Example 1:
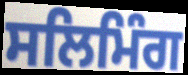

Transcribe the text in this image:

ਸਲਿਮਿੰਗ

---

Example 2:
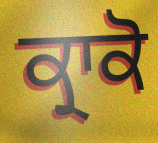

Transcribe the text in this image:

ਕ੍ਰਾਕੋ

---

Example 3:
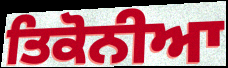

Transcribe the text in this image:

ਤਿਕੋਨੀਆ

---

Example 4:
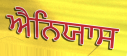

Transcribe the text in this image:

ਐਨਿਯਾਸ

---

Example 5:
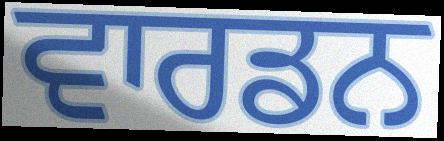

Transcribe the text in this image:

ਵਾਰਡਨ